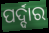
ପର୍ଦ୍ଦାର